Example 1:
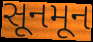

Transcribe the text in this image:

સૂનમૂન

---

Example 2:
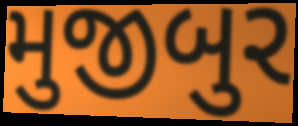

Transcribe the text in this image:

મુજીબુર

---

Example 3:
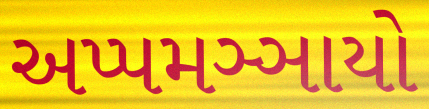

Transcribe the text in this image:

અપ્પમઞ્ઞાયો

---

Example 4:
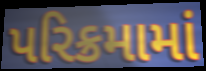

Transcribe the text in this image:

પરિક્રમામાં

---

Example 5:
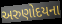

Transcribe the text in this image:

અરુણોદયના